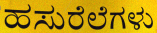
ಹಸುರೆಲೆಗಳು